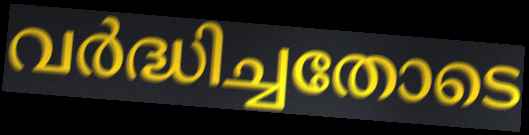
വർദ്ധിച്ചതോടെ